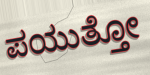
ಪಯುತ್ತೋ